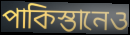
পাকিস্তানেও